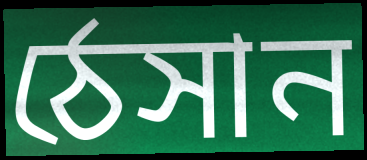
ঠেসান